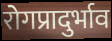
रोगप्रादुर्भाव